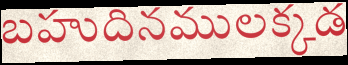
బహుదినములక్కడ